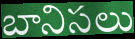
బానిసలు